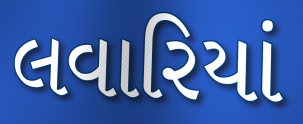
લવારિયાં